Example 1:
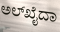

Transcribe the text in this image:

ಅಲ್‌ಖೈದಾ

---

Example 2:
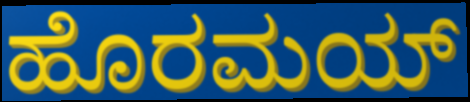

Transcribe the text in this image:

ಹೊರಮಯ್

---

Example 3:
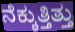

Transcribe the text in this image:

ನೆಕ್ಕುತ್ತಿತ್ತು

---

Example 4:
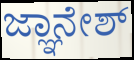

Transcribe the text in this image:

ಜ್ಞಾನೇಶ್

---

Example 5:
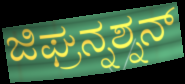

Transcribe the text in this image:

ಜಿಘ್ರನ್ನಶ್ನನ್